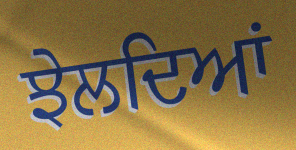
ਝੇਲਦਿਆਂ